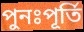
পুনঃপূৰ্তি